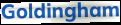
Goldingham